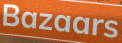
Bazaars